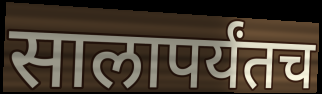
सालापर्यंतच